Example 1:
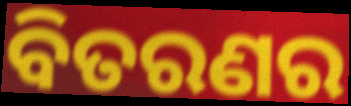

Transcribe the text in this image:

ବିତରଣର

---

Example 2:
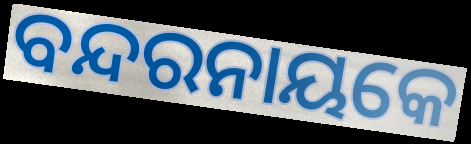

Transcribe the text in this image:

ବନ୍ଦରନାୟକେ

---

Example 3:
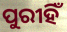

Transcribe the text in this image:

ପୁରୀହିଁ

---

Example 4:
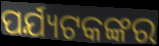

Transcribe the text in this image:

ପର୍ଯ୍ୟଟକଙ୍କର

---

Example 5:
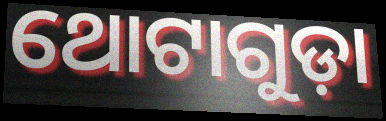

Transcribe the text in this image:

ଥୋଟାଗୁଡ଼ା